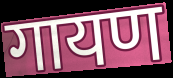
गायण